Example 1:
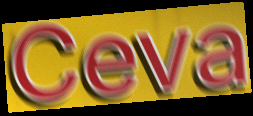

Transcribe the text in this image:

Ceva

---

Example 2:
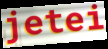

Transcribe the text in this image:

jetei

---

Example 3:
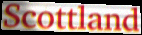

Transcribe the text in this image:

Scottland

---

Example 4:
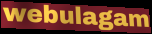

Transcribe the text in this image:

webulagam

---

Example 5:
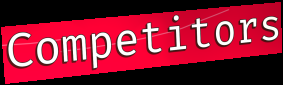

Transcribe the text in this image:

Competitors